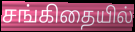
சங்கிதையில்